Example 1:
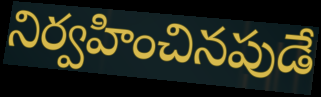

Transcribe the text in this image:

నిర్వహించినపుడే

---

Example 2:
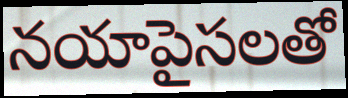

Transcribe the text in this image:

నయాపైసలతో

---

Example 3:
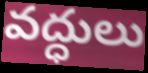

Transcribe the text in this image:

వద్ధులు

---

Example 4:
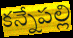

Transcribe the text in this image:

కన్నేపల్లి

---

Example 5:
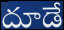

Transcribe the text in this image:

దూడే